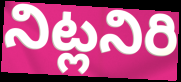
నిట్లనిరి